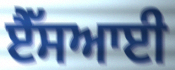
ਏੈੱਸਆਈ